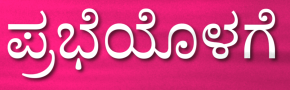
ಪ್ರಭೆಯೊಳಗೆ